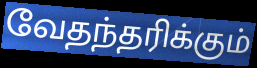
வேதந்தரிக்கும்